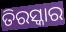
ତିରସ୍କାର